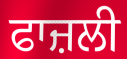
ਫਾਜ਼ਲੀ